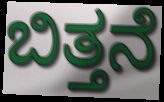
ಬಿತ್ತನೆ